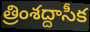
త్రింశద్దాసీక